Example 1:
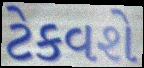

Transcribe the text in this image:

ટેકવશે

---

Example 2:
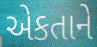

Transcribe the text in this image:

એકતાને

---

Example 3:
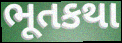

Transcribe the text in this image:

ભૂતકથા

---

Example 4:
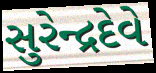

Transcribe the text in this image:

સુરેન્દ્રદેવે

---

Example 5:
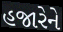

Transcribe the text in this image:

હજારેને